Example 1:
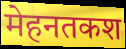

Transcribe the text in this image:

मेहनतकश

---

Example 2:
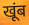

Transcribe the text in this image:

खूंब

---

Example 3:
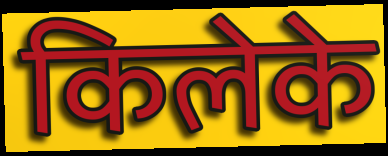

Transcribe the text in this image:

किलेके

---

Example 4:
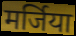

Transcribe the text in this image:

मर्जिया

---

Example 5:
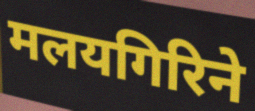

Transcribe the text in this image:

मलयगिरिने